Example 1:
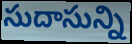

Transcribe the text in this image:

సుదాసున్ని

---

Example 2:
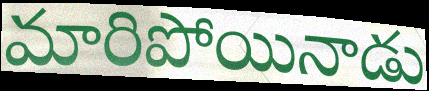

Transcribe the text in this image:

మారిపోయినాడు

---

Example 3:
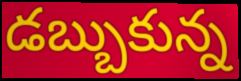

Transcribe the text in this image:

డబ్బుకున్న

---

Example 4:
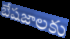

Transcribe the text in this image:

బేషజాలకు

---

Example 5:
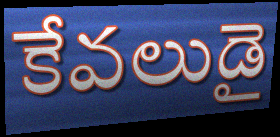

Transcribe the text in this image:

కేవలుడై